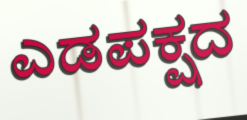
ಎಡಪಕ್ಷದ